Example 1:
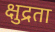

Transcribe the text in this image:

क्षुद्रता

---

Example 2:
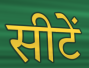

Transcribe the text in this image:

सीटें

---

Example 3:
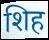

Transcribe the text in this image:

शिह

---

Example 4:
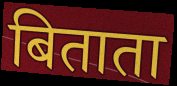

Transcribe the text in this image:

बिताता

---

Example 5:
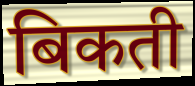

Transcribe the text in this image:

बिकती